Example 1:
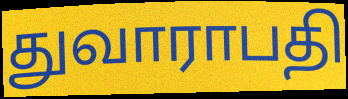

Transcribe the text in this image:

துவாராபதி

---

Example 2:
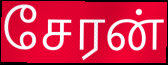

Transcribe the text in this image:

சேரன்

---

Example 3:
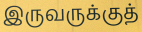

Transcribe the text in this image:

இருவருக்குத்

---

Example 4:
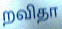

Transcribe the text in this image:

றவிதா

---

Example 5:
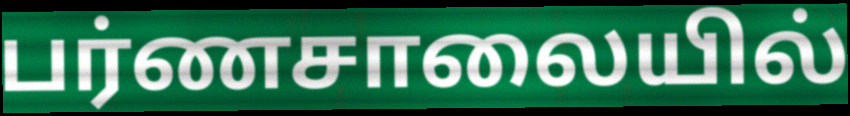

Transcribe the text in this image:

பர்ணசாலையில்